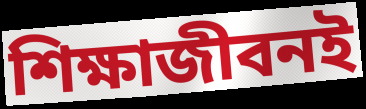
শিক্ষাজীবনই